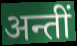
अन्तीं